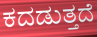
ಕದಡುತ್ತದೆ